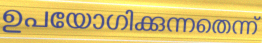
ഉപയോഗിക്കുന്നതെന്ന്